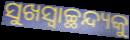
ସୁଖସ୍ଵାଚ୍ଛନ୍ଦ୍ୟକୁ